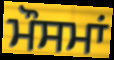
ਮੌਸਮਾਂ